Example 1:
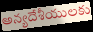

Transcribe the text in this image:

అన్యదేశీయులకు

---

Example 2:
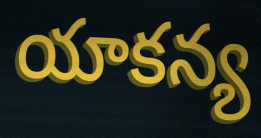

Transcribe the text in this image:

యాకన్య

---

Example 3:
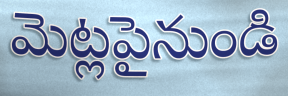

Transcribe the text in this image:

మెట్లపైనుండి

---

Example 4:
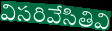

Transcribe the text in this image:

విసరివేసితివి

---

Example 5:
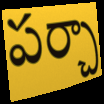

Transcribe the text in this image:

పర్చా